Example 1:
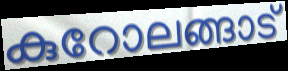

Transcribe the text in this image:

കുറോലങ്ങാട്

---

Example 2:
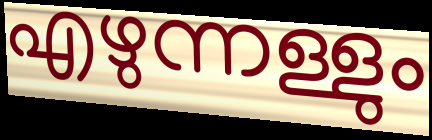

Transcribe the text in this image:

എഴുന്നള്ളും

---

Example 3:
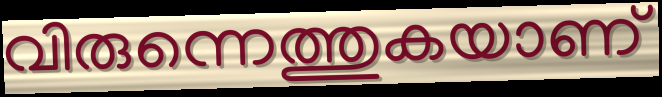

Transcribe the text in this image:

വിരുന്നെത്തുകയാണ്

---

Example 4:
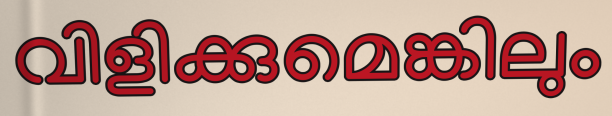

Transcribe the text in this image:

വിളിക്കുമെങ്കിലും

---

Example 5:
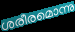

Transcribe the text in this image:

ശരീരമൊന്നു